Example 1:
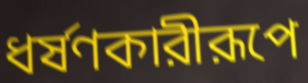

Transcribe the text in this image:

ধর্ষণকারীরূপে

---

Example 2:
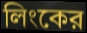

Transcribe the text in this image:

লিংকের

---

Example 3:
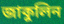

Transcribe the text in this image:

জাকুলিন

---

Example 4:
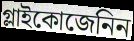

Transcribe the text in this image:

গ্লাইকোজেনিন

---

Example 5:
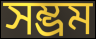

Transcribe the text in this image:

সম্ভ্রম